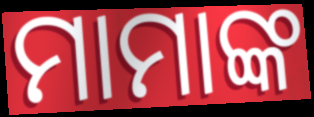
ମାମାଙ୍କ